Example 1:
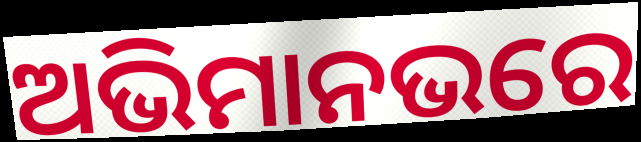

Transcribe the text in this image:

ଅଭିମାନଭରେ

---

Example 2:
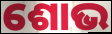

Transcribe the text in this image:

ଶୋଭ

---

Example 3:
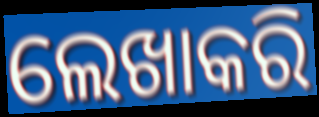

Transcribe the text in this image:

ଲେଖାକରି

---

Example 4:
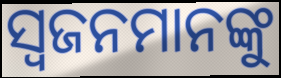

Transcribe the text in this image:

ସ୍ବଜନମାନଙ୍କୁ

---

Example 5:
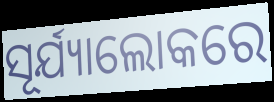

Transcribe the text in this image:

ସୂର୍ଯ୍ୟାଲୋକରେ